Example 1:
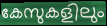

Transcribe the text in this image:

കേസുകളിലും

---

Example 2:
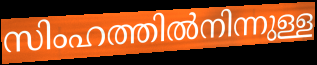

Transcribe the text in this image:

സിംഹത്തിൽനിന്നുള്ള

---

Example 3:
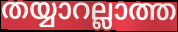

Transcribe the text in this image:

തയ്യാറല്ലാത്ത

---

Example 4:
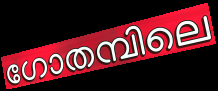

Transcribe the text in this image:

ഗോതമ്പിലെ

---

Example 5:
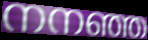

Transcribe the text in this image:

നനഞ്ഞ